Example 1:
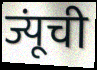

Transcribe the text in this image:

ज्यूंची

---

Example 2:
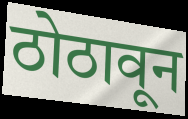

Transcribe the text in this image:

ठोठावून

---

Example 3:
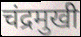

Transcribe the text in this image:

चंद्रमुखी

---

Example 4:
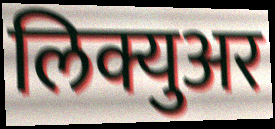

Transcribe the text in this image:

लिक्युअर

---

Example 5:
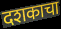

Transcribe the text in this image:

दशकाचा